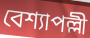
বেশ্যাপল্লী